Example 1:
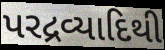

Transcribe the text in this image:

પરદ્રવ્યાદિથી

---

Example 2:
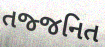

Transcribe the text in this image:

તજ્જનિત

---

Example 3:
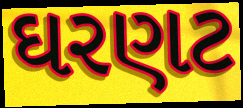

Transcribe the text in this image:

ઘરણટ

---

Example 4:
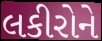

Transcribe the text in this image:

લકીરોને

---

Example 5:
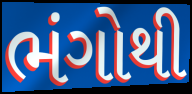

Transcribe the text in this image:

ભંગોથી